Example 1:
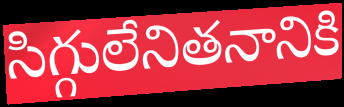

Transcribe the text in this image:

సిగ్గులేనితనానికి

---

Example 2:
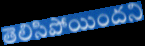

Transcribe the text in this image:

తెలిసిపోయిందని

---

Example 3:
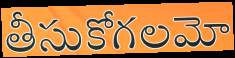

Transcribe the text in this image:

తీసుకోగలమో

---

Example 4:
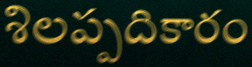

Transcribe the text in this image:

శిలప్పదికారం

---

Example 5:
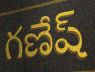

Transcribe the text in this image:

గణేష్